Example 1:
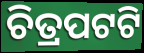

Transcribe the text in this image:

ଚିତ୍ରପଟଟି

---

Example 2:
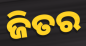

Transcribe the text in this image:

ଜିତର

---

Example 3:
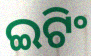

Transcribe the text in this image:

ଇଟିଂ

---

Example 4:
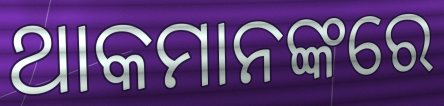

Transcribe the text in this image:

ଥାକମାନଙ୍କରେ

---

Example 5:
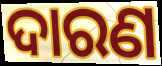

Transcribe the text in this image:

ଦାରଣ